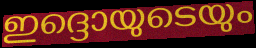
ഇദ്ദൊയുടെയും